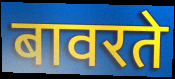
बावरते